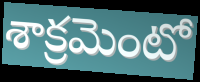
శాక్రమెంటో